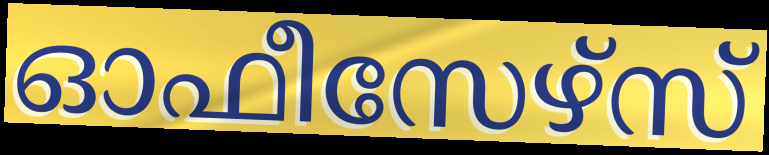
ഓഫീസേഴ്സ്